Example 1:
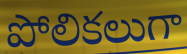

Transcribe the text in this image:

పోలికలుగా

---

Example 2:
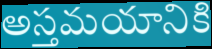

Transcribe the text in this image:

అస్తమయానికి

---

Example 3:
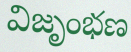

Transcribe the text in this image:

విజృంభణ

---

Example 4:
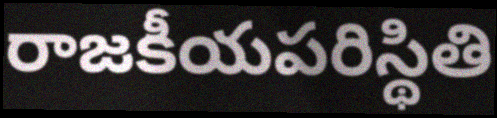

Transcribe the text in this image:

రాజకీయపరిస్థితి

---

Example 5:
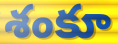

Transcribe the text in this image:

శంకూ